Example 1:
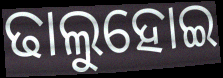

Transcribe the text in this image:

ଢାଲୁହୋଇ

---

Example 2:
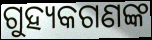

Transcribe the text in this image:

ଗୁହ୍ୟକଗଣଙ୍କ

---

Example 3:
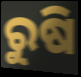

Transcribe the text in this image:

ରୁଷି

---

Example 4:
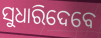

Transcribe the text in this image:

ସୁଧାରିଦେବେ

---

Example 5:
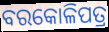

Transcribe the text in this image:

ବରକୋଳିପତ୍ର